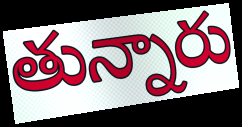
తున్నారు